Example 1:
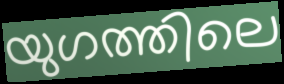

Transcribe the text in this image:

യുഗത്തിലെ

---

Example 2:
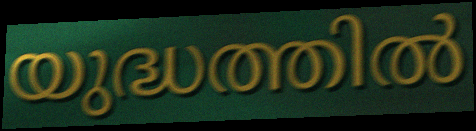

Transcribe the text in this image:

യുദ്ധത്തിൽ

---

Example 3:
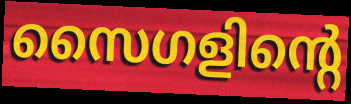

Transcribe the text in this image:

സൈഗളിന്റെ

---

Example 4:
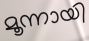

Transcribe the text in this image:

മൂന്നായി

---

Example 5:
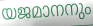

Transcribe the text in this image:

യജമാനനും